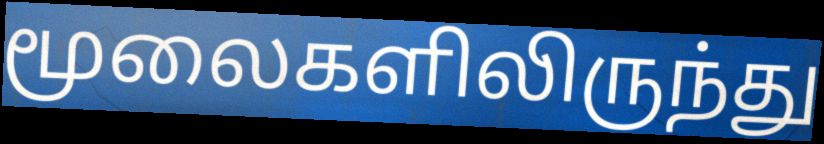
மூலைகளிலிருந்து